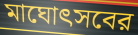
মাঘোৎসবের